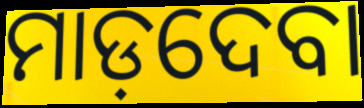
ମାଡ଼ଦେବା